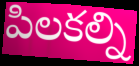
పిలకల్ని